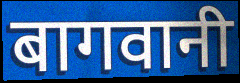
बागवानी